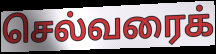
செல்வரைக்